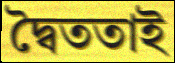
দ্বৈততাই